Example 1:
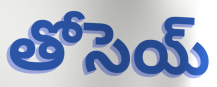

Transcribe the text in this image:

తోసెయ్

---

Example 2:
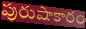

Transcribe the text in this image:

పురుషాకారం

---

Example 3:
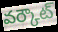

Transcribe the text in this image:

వర్కౌట్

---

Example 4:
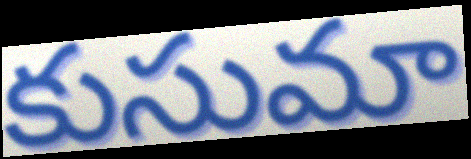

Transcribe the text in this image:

కుసుమా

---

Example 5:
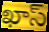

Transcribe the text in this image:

ఖాస్